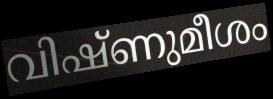
വിഷ്ണുമീശം